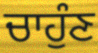
ਚਾਹੁੰਣ